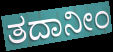
ತದಾನೀಂ